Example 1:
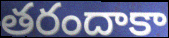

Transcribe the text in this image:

తరందాకా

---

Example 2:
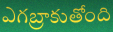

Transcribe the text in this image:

ఎగబ్రాకుతోంది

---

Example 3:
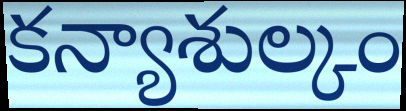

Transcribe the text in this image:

కన్యాశుల్కం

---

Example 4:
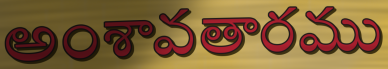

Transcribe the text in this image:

అంశావతారము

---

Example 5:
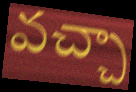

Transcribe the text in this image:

వచ్చా